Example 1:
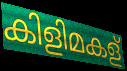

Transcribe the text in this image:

കിളിമകള്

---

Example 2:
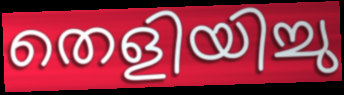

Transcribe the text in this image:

തെളിയിച്ചു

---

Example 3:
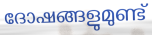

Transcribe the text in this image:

ദോഷങ്ങളുമുണ്ട്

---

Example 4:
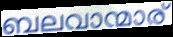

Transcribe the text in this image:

ബലവാന്മാര്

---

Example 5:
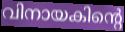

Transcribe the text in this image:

വിനായകിന്റെ